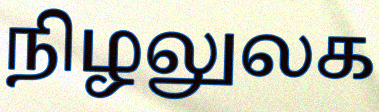
நிழலுலக